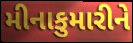
મીનાકુમારીને